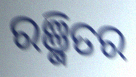
ରଞ୍ଜିତର